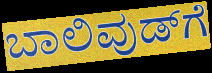
ಬಾಲಿವುಡ್‌ಗೆ